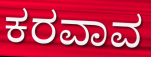
ಕರವಾವ